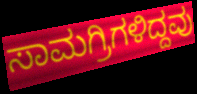
ಸಾಮಗ್ರಿಗಳಿದ್ದವು